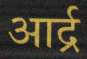
आर्द्र